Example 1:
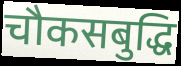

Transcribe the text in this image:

चौकसबुद्धि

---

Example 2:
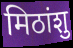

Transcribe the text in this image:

मिठांशु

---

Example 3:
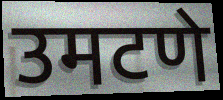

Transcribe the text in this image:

उमटणे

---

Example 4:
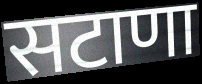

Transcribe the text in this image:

सटाणा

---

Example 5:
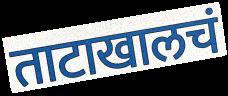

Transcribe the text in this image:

ताटाखालचं